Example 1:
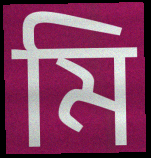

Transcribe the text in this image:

মি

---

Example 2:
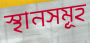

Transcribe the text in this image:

স্থানসমূহ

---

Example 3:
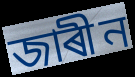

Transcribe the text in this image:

জাৰীন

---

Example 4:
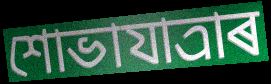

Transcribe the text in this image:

শোভাযাত্ৰাৰ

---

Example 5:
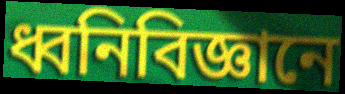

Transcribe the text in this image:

ধ্বনিবিজ্ঞানে